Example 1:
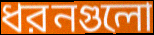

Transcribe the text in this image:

ধরনগুলো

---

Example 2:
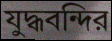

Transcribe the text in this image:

যুদ্ধবন্দির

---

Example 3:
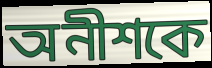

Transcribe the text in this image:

অনীশকে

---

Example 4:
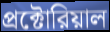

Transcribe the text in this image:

প্রক্টোরিয়াল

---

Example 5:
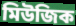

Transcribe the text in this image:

মিউজিক